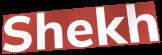
Shekh